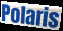
Polaris